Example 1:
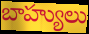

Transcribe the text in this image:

బాహ్యులు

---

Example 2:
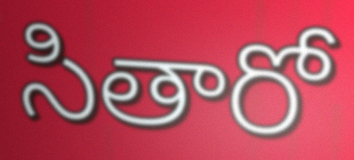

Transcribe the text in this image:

సితారో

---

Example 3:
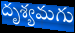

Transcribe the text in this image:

దృశ్యమగు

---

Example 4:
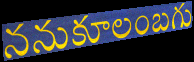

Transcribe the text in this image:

ననుకూలంబగు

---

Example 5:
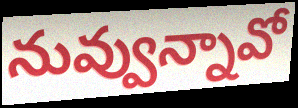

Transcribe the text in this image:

నువ్వున్నావో